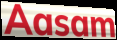
Aasam